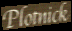
Plotnick